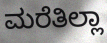
ಮರೆತಿಲ್ಲಾ